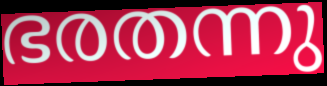
ഭരതന്നു